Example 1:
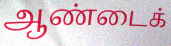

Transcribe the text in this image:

ஆண்டைக்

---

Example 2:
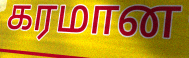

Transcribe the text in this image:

கரமான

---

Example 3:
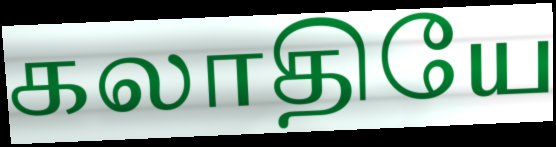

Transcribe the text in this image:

கலாதியே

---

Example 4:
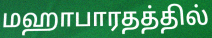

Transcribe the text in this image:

மஹாபாரதத்தில்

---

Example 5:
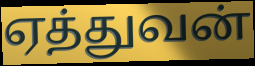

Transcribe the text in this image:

ஏத்துவன்